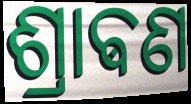
ଶ୍ରାଵଣ